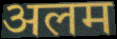
अलम